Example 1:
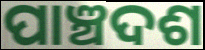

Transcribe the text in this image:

ପାଞ୍ଚଦଶ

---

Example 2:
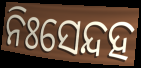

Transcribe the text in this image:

ନିଃସେନ୍ଦହ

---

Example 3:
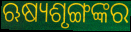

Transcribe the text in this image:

ଋଷ୍ୟଶୃଙ୍ଗଙ୍କର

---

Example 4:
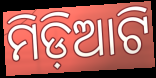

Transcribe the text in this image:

ମିଡ଼ିଆଟି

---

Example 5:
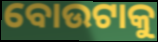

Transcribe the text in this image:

ବୋଉଟାକୁ